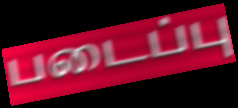
படைப்பு